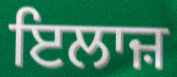
ਇਲਾਜ਼